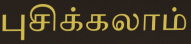
புசிக்கலாம்